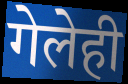
गेलेही